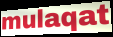
mulaqat